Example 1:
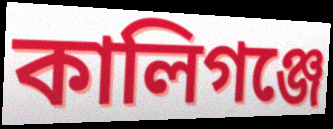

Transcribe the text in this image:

কালিগঞ্জে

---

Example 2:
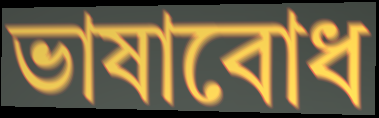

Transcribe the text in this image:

ভাষাবোধ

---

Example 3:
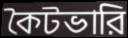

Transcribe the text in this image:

কৈটভারি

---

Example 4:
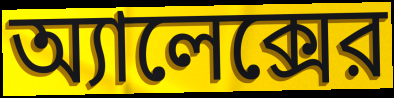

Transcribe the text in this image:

অ্যালেক্সের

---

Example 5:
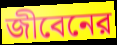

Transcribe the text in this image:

জীবেনের